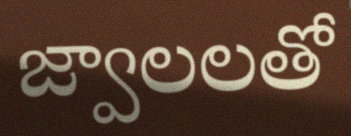
జ్వాలలతో